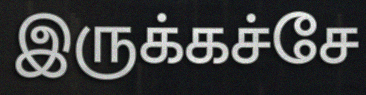
இருக்கச்சே